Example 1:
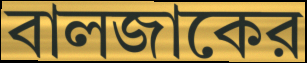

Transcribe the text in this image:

বালজাকের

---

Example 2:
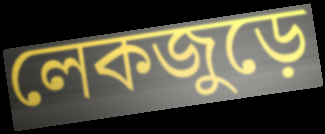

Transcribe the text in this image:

লেকজুড়ে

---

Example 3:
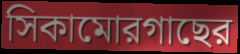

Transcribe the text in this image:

সিকামোরগাছের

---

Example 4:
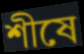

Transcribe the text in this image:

শীষে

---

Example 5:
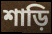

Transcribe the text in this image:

শাড়ি